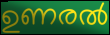
ഉണരൽ